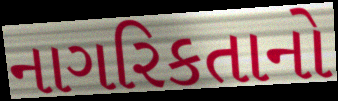
નાગરિકતાનો